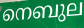
നെബുല